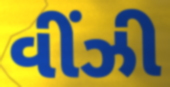
વીંઝી